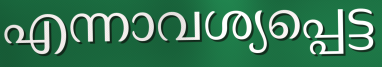
എന്നാവശ്യപ്പെട്ട